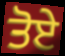
ਤੋਏ